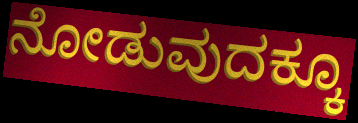
ನೋಡುವುದಕ್ಕೂ